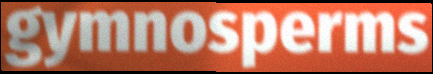
gymnosperms